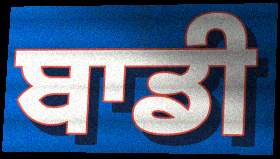
ਬਾਡੀ